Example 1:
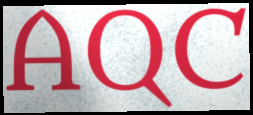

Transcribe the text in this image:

AQC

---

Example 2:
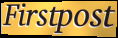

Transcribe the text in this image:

Firstpost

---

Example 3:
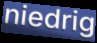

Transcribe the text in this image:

niedrig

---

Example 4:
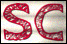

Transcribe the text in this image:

SC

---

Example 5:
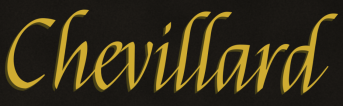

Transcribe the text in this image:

Chevillard